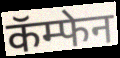
कॅम्फेन